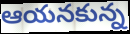
ఆయనకున్న